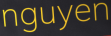
nguyen